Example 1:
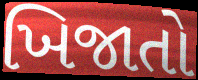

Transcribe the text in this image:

ખિજાતો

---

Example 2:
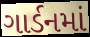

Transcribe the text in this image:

ગાર્ડનમાં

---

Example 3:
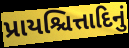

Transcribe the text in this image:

પ્રાયશ્ચિત્તાદિનું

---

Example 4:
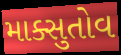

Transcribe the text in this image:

માક્સુતોવ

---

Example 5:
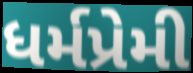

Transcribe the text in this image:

ધર્મપ્રેમી